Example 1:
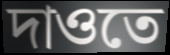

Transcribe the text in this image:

দাওতে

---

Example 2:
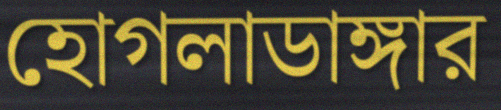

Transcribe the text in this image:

হোগলাডাঙ্গার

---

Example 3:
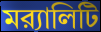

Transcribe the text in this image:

মর‍্যালিটি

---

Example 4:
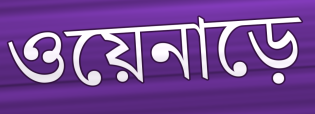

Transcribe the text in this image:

ওয়েনাড়ে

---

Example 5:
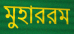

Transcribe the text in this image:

মুহাররম